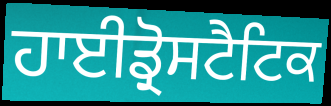
ਹਾਈਡ੍ਰੋਸਟੈਟਿਕ